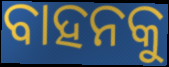
ବାହନକୁ